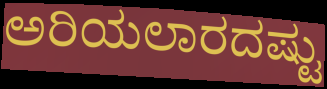
ಅರಿಯಲಾರದಷ್ಟು